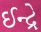
ઈન્દ્રે